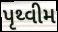
પૃથ્વીમ